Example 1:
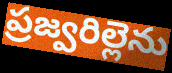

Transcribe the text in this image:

ప్రజ్వరిల్లెను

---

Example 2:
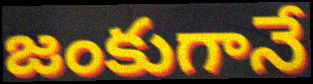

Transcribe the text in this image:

జంకుగానే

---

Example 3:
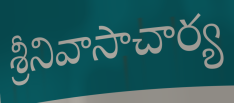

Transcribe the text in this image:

శ్రీనివాసాచార్య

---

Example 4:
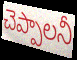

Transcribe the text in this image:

చెప్పాలనీ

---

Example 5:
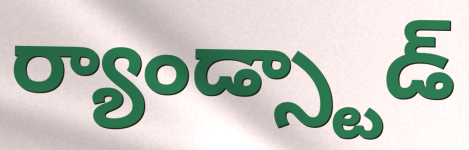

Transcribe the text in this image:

ర్యాండ్స్టాడ్